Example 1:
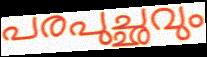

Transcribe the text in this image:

പരപുച്ഛവും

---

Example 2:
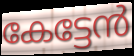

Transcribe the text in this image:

കേട്ടേൻ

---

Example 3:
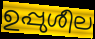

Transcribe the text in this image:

ഉപ്പുശീല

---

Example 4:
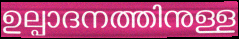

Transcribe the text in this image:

ഉല്പാദനത്തിനുള്ള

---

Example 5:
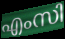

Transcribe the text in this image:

എംസി